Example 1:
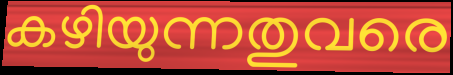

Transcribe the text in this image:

കഴിയുന്നതുവരെ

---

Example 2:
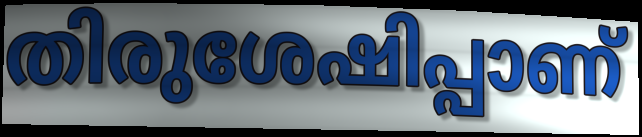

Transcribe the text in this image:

തിരുശേഷിപ്പാണ്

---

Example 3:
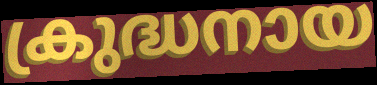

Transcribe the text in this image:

ക്രുദ്ധനായ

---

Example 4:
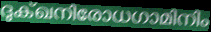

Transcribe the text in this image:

ദുക്ഖനിരോധഗാമിനിം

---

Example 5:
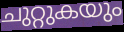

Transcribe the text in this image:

ചുറ്റുകയും